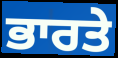
ਭਾਰਤੇ